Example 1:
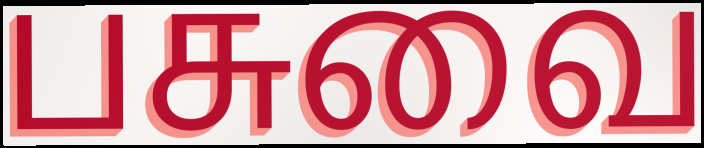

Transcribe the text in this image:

பசுவை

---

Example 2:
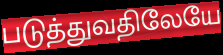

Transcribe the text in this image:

படுத்துவதிலேயே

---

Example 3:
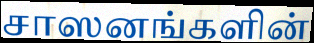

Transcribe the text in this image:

சாஸனங்களின்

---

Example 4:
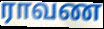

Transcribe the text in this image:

ராவண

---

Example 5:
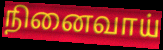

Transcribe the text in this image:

நினைவாய்